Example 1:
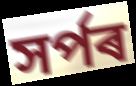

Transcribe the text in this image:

সৰ্পৰ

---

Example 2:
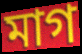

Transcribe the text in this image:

মাগ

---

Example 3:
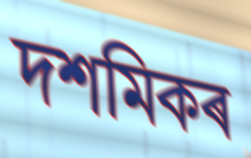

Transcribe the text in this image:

দশমিকৰ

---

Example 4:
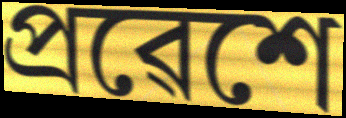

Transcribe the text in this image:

প্ৰৱেশে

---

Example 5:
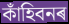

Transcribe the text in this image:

কাঁহিবনৰ